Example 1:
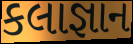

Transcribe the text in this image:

કલાજ્ઞાન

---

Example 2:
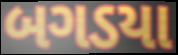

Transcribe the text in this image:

બગડયા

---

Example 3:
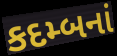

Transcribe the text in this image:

કદમ્બનાં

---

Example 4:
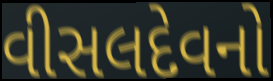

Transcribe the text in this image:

વીસલદેવનો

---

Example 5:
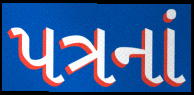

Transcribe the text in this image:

પત્રનાં